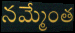
నమ్మేంత